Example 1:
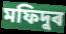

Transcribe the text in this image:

মফিদুৰ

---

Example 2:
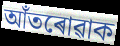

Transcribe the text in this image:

আঁতৰোৱাক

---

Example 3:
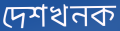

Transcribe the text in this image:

দেশখনক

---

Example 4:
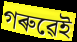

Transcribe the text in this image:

গৰুৱেই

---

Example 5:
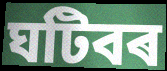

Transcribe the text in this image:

ঘটিবৰ